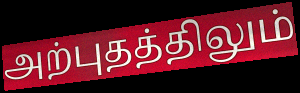
அற்புதத்திலும்